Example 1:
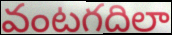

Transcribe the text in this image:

వంటగదిలా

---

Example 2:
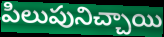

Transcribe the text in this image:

పిలుపునిచ్చాయి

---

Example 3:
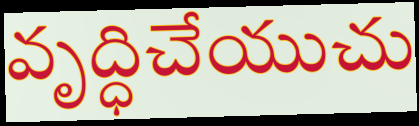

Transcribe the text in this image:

వృద్ధిచేయుచు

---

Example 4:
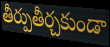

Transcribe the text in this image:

తీర్పుతీర్చకుండా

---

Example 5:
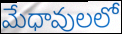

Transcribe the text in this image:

మేధావులలో